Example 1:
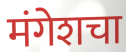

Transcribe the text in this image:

मंगेशचा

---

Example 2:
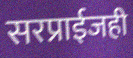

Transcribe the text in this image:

सरप्राईजही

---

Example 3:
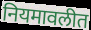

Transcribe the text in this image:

नियमावलीत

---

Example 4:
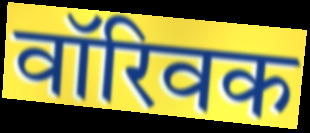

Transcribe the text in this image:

वॉरिवक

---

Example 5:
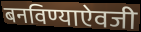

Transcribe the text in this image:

बनविण्याऐवजी